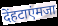
देंहटाएंमजा